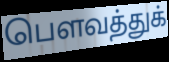
பௌவத்துக்